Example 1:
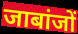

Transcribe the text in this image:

जाबांजों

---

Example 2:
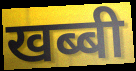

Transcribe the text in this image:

खब्बी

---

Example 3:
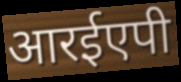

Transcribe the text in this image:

आरईएपी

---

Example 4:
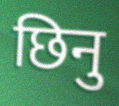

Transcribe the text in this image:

छिनु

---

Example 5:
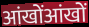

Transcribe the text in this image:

आंखोंआंखों